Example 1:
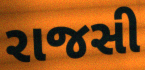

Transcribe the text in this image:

રાજસી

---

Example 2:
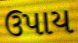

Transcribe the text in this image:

ઉપાય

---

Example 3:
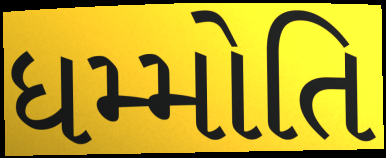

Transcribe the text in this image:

ધમ્મોતિ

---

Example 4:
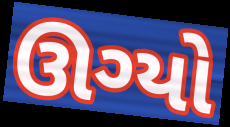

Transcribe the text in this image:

ઊગ્યો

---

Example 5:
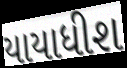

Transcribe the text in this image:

યાયાધીશ